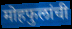
मोहफुलांची